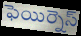
ఫెయిర్నెస్